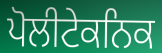
ਪੋਲੀਟੇਕਨਿਕ